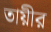
তায়ীর